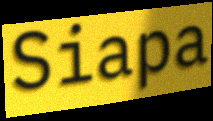
Siapa